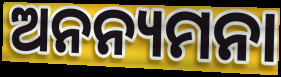
ଅନନ୍ୟମନା